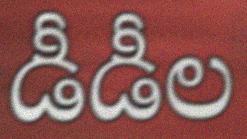
డీడీల